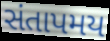
સંતાપમય